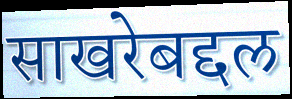
साखरेबद्दल